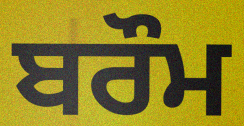
ਬਰੌਮ